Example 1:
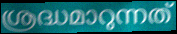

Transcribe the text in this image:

ശ്രദ്ധമാറുന്നത്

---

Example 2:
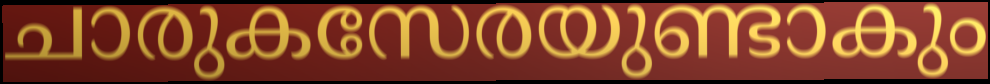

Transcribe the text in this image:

ചാരുകസേരയുണ്ടാകും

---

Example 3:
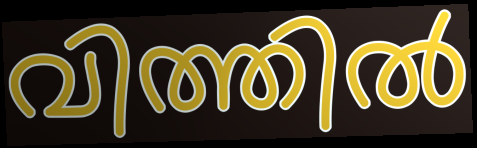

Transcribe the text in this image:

വിത്തിൽ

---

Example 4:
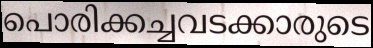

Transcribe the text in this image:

പൊരിക്കച്ചവടക്കാരുടെ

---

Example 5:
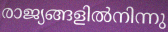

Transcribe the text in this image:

രാജ്യങ്ങളിൽനിന്നു